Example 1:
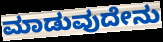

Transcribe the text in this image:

ಮಾಡುವುದೇನು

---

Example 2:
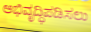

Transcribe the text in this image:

ಅಭಿವೃದ್ಧಿಪಡಿಸಲು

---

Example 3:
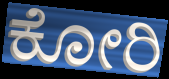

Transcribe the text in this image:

ಕೋರಿ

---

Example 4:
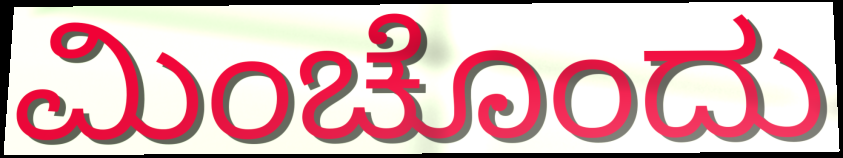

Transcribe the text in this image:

ಮಿಂಚೊಂದು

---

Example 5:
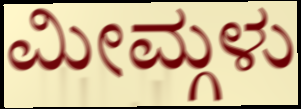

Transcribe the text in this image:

ಮೀಮ್ಗಳು